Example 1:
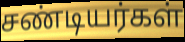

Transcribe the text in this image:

சண்டியர்கள்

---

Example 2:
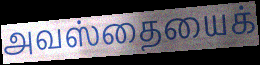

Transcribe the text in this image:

அவஸ்தையைக்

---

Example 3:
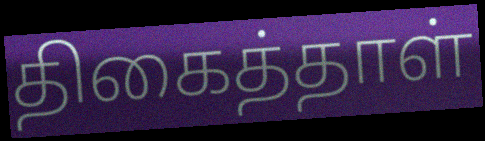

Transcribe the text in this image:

திகைத்தாள்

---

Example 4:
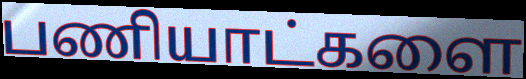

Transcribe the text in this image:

பணியாட்களை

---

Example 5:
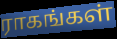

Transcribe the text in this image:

ராகங்கள்